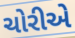
ચોરીએ